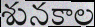
శునకాల